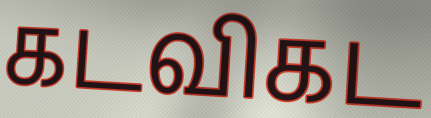
கடவிகட